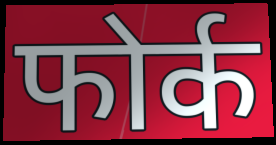
फोर्क